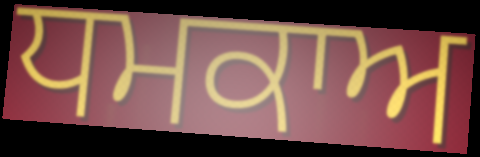
ਧਮਕਾਅ